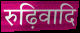
रुढ़िवादि